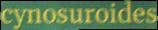
cynosuroides